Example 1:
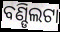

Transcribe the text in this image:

ବଣ୍ଡିଲଟା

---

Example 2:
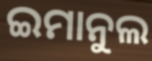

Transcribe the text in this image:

ଇମାନୁଲ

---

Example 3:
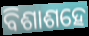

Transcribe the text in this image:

ବିଶାଶହେ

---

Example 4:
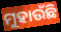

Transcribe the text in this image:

ମୁହାଉଁଛି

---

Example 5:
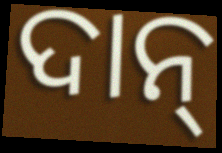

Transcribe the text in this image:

ଦାନ୍